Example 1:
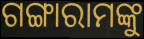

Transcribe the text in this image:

ଗଙ୍ଗାରାମଙ୍କୁ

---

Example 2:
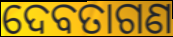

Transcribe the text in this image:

ଦେବତାଗଣ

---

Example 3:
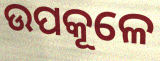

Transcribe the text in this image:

ଉପକୂଳେ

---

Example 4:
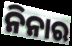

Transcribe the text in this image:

ନିନାର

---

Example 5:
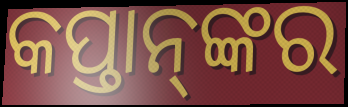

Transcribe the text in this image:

କପ୍ତାନ୍‌ଙ୍କର